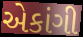
એકાંગી